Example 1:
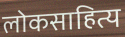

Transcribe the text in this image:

लोकसाहित्य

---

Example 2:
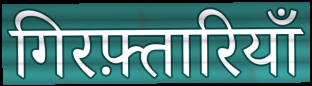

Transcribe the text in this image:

गिरफ़्तारियाँ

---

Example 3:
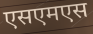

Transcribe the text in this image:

एसएमएस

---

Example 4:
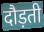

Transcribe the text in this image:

दौड़ती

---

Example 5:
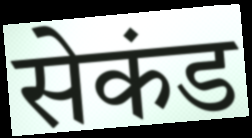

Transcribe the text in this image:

सेकंड